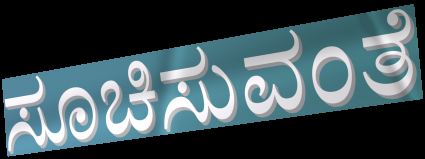
ಸೂಚಿಸುವಂತೆ